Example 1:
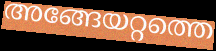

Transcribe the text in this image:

അങ്ങേയറ്റത്തെ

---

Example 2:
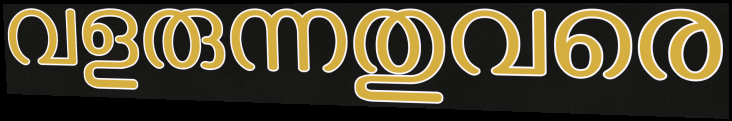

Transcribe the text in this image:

വളരുന്നതുവരെ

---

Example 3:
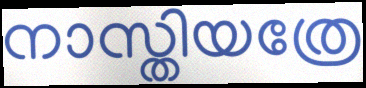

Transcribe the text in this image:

നാസ്തിയത്രേ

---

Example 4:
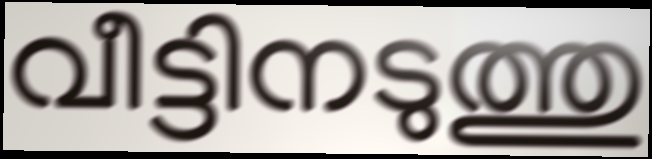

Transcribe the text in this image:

വീട്ടിനടുത്തു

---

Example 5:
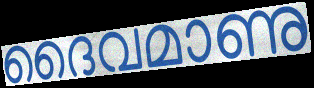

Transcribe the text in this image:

ദൈവമാണു